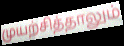
முயற்சித்தாலும்